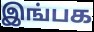
இங்பக